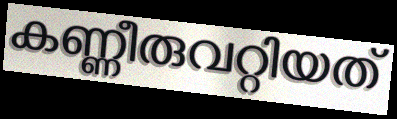
കണ്ണീരുവറ്റിയത്